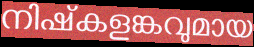
നിഷ്‌കളങ്കവുമായ